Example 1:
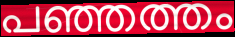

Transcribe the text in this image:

പഞ്ഞത്തം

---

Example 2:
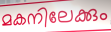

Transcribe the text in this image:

മകനിലേക്കും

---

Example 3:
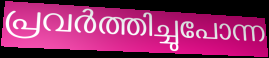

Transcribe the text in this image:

പ്രവർത്തിച്ചുപോന്ന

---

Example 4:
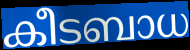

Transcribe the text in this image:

കീടബാധ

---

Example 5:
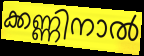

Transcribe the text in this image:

ക്കണ്ണിനാൽ